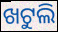
ଖଟୁଲି